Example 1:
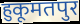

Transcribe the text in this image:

हुकूमतपुर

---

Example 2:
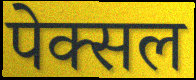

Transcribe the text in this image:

पेक्सल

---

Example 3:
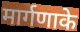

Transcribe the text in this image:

मार्गणाके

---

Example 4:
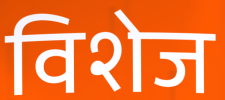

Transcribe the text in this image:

विशेज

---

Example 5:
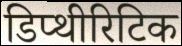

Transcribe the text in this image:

डिप्थीरिटिक